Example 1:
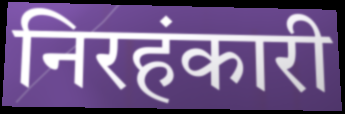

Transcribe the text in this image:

निरहंकारी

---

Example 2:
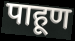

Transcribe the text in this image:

पाहूण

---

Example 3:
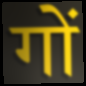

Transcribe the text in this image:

गों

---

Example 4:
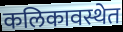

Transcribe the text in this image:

कलिकावस्थेत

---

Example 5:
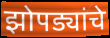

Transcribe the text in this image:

झोपड्यांचे